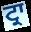
ਟ੍ਰਾ